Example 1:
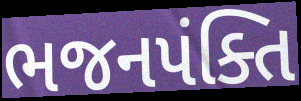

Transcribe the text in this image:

ભજનપંક્તિ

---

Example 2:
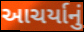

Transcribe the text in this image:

આચર્યાનું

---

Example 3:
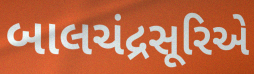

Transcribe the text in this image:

બાલચંદ્રસૂરિએ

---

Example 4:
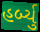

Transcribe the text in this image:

હર્બ્યુ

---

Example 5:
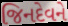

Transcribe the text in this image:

જિનદેવને